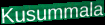
Kusummala